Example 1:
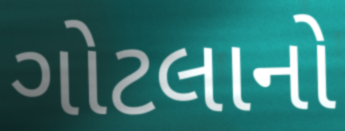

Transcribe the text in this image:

ગોટલાનો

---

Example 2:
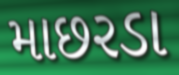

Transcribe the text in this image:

માછરડા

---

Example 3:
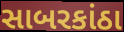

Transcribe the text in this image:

સાબરકાંઠા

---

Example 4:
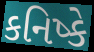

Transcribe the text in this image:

કનિષ્કે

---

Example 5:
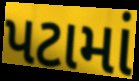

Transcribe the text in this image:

પટામાં